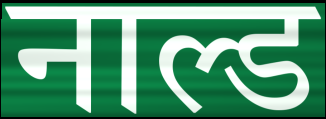
नाल्ड